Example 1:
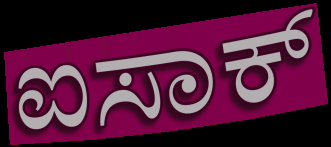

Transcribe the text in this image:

ಐಸಾಕ್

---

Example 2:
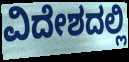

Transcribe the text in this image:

ವಿದೇಶದಲ್ಲಿ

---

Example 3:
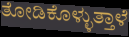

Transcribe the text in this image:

ತೋಡಿಕೊಳ್ಳುತ್ತಾಳೆ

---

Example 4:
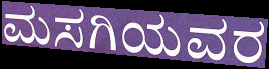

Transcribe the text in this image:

ಮಸಗಿಯವರ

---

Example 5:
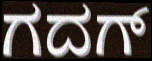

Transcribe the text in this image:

ಗದಗ್